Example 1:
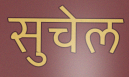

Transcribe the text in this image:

सुचेल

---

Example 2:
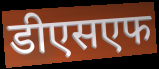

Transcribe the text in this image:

डीएसएफ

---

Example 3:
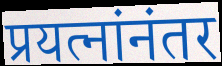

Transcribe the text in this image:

प्रयत्नांनंतर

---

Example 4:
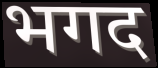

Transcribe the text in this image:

भगद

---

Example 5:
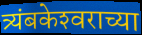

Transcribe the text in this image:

त्र्यंबकेश्वराच्या